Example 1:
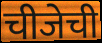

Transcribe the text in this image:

चीजेची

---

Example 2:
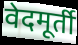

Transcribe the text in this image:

वेदमूर्ती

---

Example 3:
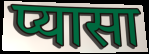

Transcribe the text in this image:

प्यासा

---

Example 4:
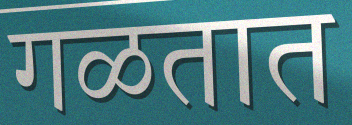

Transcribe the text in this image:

गळतात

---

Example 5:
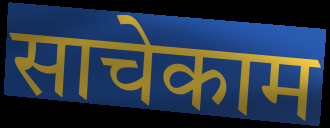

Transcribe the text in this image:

साचेकाम